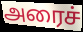
அரைச்